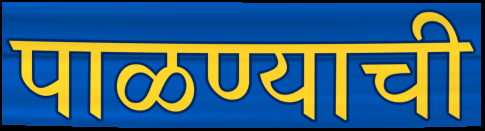
पाळण्याची